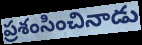
ప్రశంసించినాడు